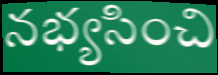
నభ్యసించి